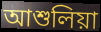
আশুলিয়া